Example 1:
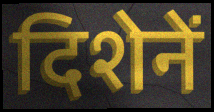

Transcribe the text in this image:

दिशेनें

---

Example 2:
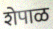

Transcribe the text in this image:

शेपाळ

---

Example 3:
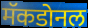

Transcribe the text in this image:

मॅकडोनल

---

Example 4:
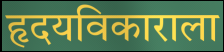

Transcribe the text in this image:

हृदयविकाराला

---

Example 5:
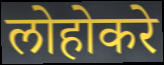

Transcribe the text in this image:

लोहोकरे